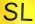
SL